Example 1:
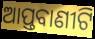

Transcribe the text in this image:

ଆପ୍ତବାଣୀଟି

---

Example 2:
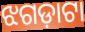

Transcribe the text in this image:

ଝଗଡ଼ାଟା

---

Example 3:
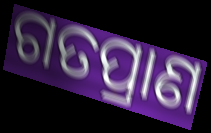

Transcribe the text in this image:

ଗତପ୍ରାଣ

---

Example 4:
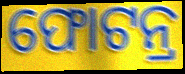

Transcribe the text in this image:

ଫୋଟନ୍ର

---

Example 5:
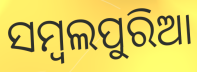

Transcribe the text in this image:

ସମ୍ୱଲପୁରିଆ